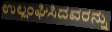
ಉಲ್ಲಂಘಿಸಿದವರನ್ನು